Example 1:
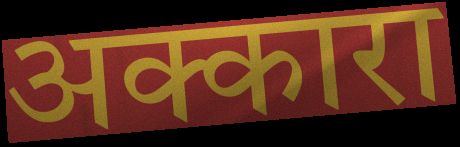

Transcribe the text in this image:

अक्कारा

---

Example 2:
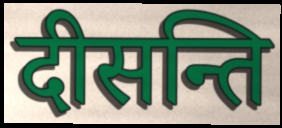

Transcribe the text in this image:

दीसन्ति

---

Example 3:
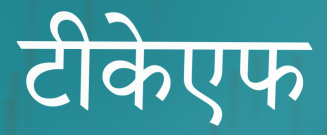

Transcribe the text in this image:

टीकेएफ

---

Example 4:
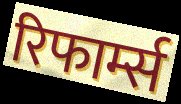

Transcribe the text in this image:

रिफार्म्स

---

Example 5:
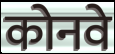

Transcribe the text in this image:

कोनवे